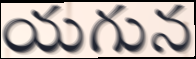
యగున